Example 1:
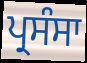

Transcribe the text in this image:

ਪ੍ਰਸੰਸਾ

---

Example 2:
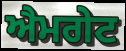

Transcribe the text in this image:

ਐਮਗੇਟ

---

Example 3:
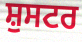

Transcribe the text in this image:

ਸ਼ੁਸਟਰ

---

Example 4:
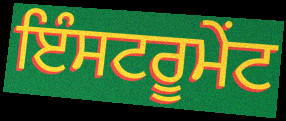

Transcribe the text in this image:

ਇੰਸਟਰੂਮੇਂਟ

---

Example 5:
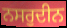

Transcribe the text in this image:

ਨਸਰੁਦੀਨ